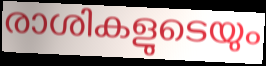
രാശികളുടെയും